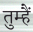
तुम्हैं